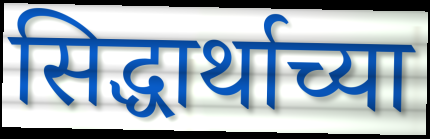
सिद्धार्थाच्या